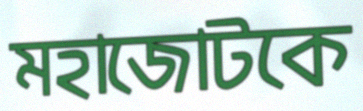
মহাজোটকে